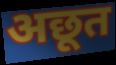
अछूत